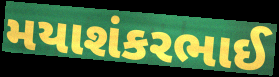
મયાશંકરભાઈ